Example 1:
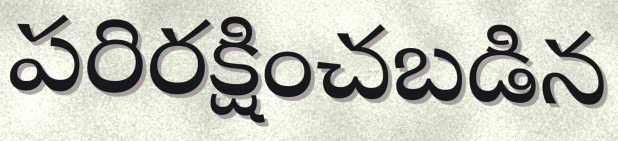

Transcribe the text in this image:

పరిరక్షించబడిన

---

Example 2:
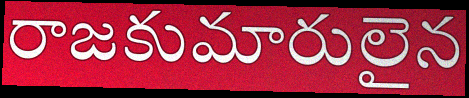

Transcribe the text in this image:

రాజకుమారులైన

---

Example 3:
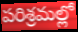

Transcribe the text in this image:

పరిశ్రమల్లో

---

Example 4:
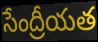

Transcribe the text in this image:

సేంద్రీయత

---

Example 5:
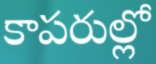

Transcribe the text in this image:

కాపరుల్లో